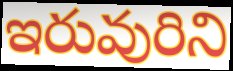
ఇరువురిని